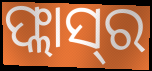
ଫ୍ଲାସ୍‌ର